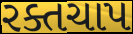
રક્તચાપ